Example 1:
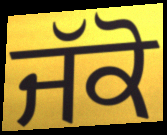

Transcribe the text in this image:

ਜੱਕੋ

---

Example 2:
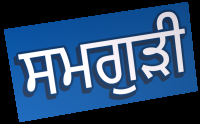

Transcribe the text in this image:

ਸਮਗੁੜੀ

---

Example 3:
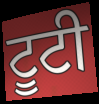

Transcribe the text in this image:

ਟੂਟੀ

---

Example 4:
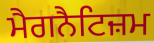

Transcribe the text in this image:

ਮੈਗਨੈਟਿਜ਼ਮ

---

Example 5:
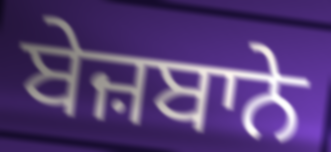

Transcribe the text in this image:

ਬੇਜ਼ਬਾਨੇ